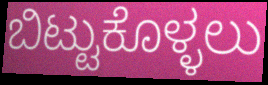
ಬಿಟ್ಟುಕೊಳ್ಳಲು